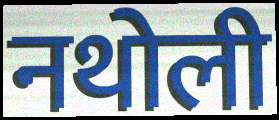
नथोली